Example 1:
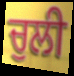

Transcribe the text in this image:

ਚੁਲੀ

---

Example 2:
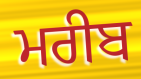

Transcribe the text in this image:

ਮਰੀਬ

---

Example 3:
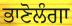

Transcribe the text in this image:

ਭਾਣੋਲੰਗਾ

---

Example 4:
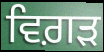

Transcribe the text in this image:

ਵਿਗ਼ੜ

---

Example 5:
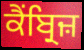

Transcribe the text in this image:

ਕੈਂਬ੍ਰਿਜ਼